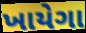
ખાયેગા